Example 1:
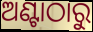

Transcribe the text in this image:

ଅଣ୍ଟାଠାରୁ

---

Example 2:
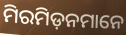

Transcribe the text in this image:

ମିରମିଡ଼ନମାନେ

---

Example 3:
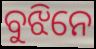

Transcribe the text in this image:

ବୁଝିନେ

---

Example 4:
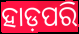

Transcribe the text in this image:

ହାଡ଼ପରି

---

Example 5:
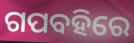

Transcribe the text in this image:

ଗପବହିରେ